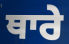
ਥਾਰੇ